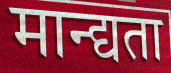
मान्द्यता